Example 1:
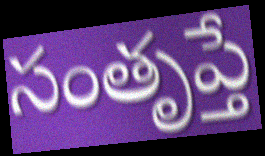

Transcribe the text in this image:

సంతృప్తే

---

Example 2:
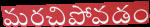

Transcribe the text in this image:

మరచిపోవడం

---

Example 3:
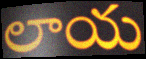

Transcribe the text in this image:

లాయ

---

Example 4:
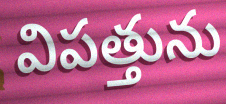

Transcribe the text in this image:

విపత్తును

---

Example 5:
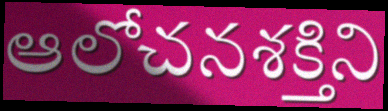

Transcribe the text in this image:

ఆలోచనశక్తిని